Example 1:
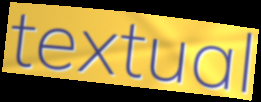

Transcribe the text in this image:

textual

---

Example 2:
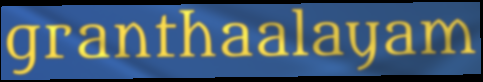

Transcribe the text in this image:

granthaalayam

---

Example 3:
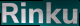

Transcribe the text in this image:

Rinku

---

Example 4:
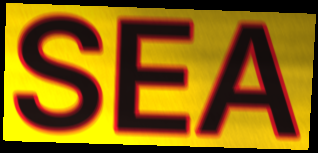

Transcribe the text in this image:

SEA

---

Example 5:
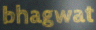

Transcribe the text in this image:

bhagwat